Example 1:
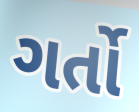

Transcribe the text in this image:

ગર્તો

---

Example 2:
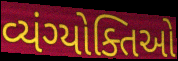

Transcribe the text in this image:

વ્યંગ્યોક્તિઓ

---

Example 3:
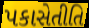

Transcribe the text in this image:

પકાસેતીતિ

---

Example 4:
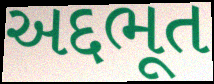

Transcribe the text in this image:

અદ્દભૂત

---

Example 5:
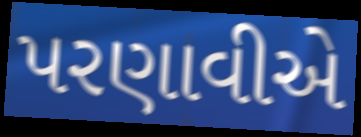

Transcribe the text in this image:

પરણાવીએ